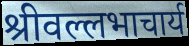
श्रीवल्लभाचार्य